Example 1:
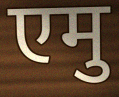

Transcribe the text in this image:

एमु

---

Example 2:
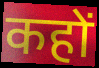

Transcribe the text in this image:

कहों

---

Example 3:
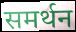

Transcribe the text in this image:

समर्थन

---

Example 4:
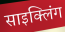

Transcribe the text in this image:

साइक्लिंग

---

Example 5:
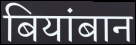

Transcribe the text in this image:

बियांबान